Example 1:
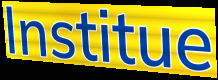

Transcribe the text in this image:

Institue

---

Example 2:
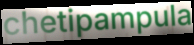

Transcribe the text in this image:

chetipampula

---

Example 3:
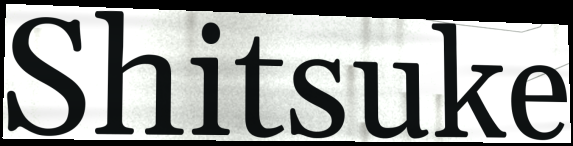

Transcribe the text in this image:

Shitsuke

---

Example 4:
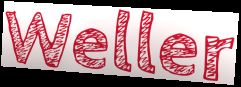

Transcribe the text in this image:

Weller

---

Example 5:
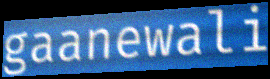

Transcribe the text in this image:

gaanewali